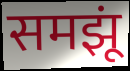
समझूं